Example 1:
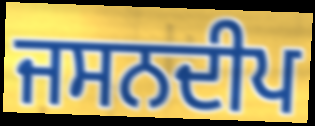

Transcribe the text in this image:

ਜਸਨਦੀਪ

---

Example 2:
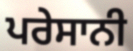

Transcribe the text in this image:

ਪਰੇਸਾਨੀ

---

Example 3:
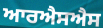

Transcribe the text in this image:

ਆਰਐਸਐਸ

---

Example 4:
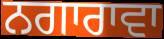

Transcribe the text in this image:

ਨਗਾਰਾਵਾ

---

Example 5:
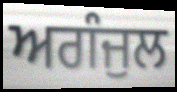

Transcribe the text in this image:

ਅਗੰਜੁਲ